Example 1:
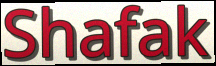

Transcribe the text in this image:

Shafak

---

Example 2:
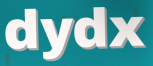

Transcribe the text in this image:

dydx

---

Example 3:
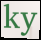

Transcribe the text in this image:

ky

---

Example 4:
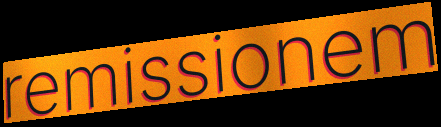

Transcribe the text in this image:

remissionem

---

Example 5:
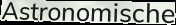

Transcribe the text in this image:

Astronomische